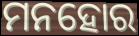
ମନହୋର